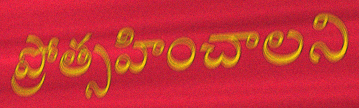
ప్రోత్సహించాలని